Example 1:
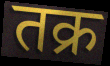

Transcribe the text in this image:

तक्र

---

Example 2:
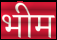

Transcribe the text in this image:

भीम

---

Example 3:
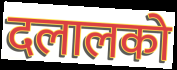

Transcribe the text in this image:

दलालको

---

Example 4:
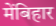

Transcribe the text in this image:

मेंबिहार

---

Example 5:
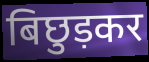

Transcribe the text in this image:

बिछुड़कर